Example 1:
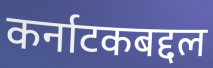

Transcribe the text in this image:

कर्नाटकबद्दल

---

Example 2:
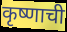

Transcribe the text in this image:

कृष्णाची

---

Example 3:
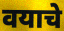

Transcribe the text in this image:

वयाचे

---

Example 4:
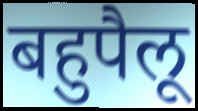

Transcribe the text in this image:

बहुपैलू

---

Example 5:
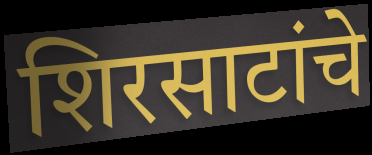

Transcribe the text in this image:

शिरसाटांचे